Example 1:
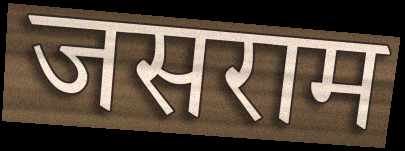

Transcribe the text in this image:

जसराम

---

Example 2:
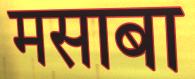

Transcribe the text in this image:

मसाबा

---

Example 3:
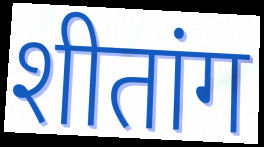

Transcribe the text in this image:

शीतांग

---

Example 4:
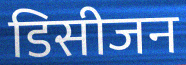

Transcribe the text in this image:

डिसीजन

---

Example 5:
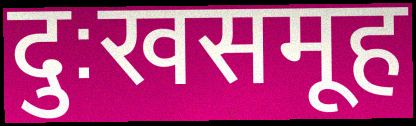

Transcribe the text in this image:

दुःखसमूह